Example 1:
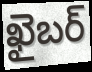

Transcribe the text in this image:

ఖైబర్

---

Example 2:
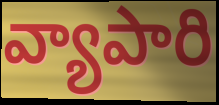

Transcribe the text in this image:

వ్యాపారి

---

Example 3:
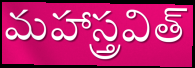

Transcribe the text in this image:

మహాస్త్రవిత్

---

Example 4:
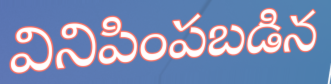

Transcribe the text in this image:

వినిపింపబడిన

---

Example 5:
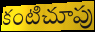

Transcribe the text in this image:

కంటిచూపు